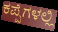
ಕಪ್ಪೆಗಳಲ್ಲಿ